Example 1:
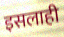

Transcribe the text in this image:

इसलाही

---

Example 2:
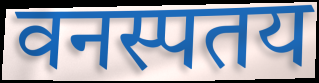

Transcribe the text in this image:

वनस्पतय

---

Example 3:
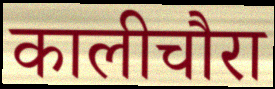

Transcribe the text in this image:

कालीचौरा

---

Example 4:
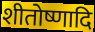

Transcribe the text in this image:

शीतोष्णादि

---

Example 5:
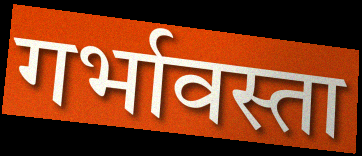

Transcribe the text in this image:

गर्भावस्ता